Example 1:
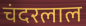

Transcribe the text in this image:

चंदरलाल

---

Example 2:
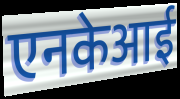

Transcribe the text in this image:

एनकेआई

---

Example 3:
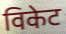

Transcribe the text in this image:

विकेट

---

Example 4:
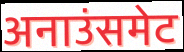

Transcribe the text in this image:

अनाउंसमेट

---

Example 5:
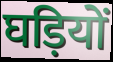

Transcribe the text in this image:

घड़ियों